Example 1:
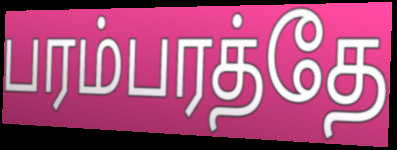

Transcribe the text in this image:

பரம்பரத்தே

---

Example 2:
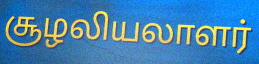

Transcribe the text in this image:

சூழலியலாளர்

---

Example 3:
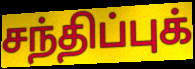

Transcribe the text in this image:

சந்திப்புக்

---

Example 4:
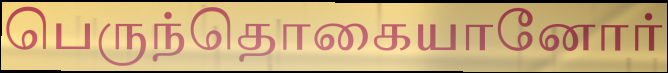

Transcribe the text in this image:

பெருந்தொகையானோர்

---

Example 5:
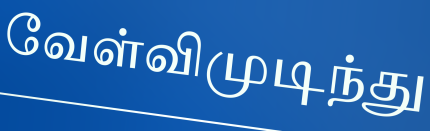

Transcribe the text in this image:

வேள்விமுடிந்து